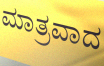
ಮಾತ್ರವಾದ